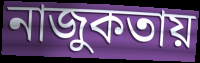
নাজুকতায়